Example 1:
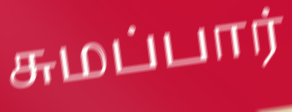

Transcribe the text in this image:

சுமப்பார்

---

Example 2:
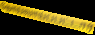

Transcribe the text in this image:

நோய்வாய்ப்பட்டார்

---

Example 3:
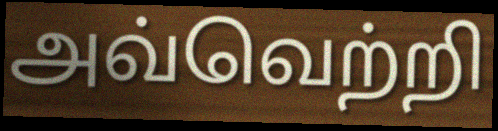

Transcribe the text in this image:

அவ்வெற்றி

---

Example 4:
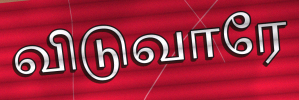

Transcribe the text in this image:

விடுவாரே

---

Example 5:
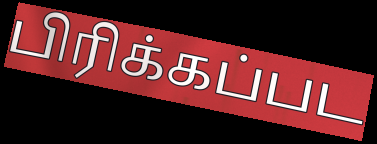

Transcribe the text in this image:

பிரிக்கப்பட